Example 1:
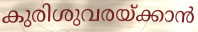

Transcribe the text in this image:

കുരിശുവരയ്ക്കാൻ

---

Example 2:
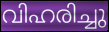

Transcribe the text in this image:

വിഹരിച്ചു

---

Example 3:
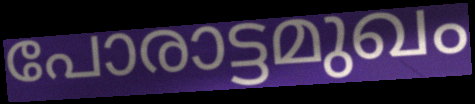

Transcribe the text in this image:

പോരാട്ടമുഖം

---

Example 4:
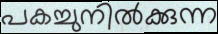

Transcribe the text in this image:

പകച്ചുനിൽക്കുന്ന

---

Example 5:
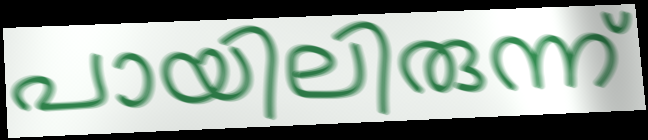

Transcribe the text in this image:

പായിലിരുന്ന്